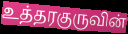
உத்தரகுருவின்